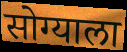
सोग्याला